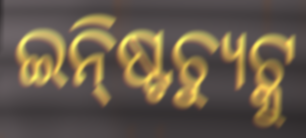
ଇନ୍ଷ୍ଟିଚ୍ୟୁଟ୍କୁ